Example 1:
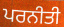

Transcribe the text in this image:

ਪਰਨੀਤੀ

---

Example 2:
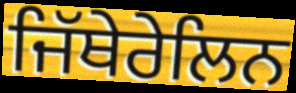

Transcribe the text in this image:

ਜਿੱਥੇਰੇਲਿਨ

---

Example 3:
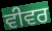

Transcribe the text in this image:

ਵੀਵਰ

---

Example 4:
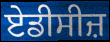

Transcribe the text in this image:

ਏਡੀਸੀਜ਼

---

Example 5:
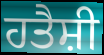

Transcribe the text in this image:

ਹਤੈਸ਼ੀ